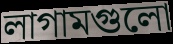
লাগামগুলো